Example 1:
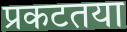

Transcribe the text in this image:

प्रकटतया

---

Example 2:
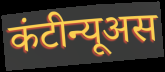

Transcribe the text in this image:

कंटीन्यूअस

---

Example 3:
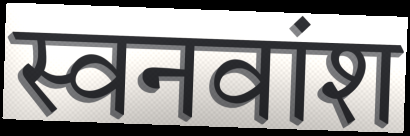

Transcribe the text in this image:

स्वनवांश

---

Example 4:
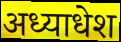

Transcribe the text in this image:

अध्याधेश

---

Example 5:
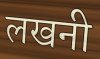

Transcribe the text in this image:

लखनी